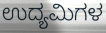
ಉದ್ಯಮಿಗಳ